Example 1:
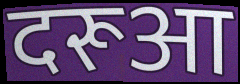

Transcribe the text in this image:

दरूआ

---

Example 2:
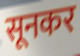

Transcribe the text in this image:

सूनकर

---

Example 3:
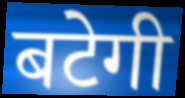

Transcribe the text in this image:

बटेगी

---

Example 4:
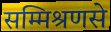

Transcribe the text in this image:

सम्मिश्रणसे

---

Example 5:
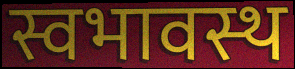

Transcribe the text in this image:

स्वभावस्थ